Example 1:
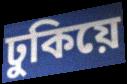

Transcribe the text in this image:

ঢুকিয়ে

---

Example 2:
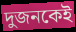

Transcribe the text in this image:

দুজনকেই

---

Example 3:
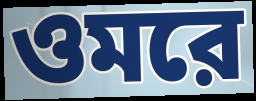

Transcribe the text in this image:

ওমরে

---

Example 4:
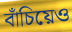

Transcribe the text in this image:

বাঁচিয়েও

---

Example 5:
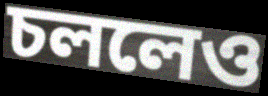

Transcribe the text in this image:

চললেও